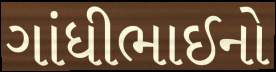
ગાંધીભાઈનો